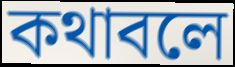
কথাবলে